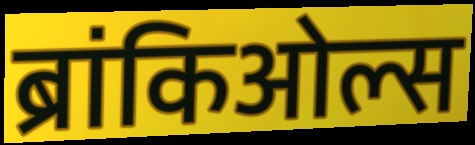
ब्रांकिओल्स